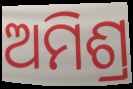
ଅମିଶ୍ର